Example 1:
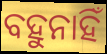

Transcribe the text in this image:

ବହୁନାହିଁ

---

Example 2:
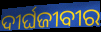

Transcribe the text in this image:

ଦୀର୍ଘଜୀବୀର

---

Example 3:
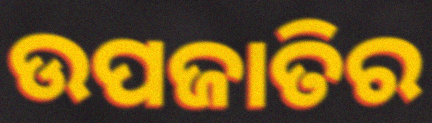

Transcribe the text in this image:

ଉପଜାତିର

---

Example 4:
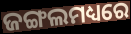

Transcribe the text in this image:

ଜଙ୍ଗଲମଧ୍ୟରେ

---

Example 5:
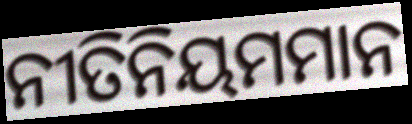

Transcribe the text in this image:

ନୀତିନିୟମମାନ